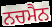
ਨਚਮੈਨ